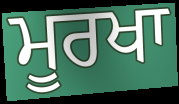
ਮੂਰਖਾ